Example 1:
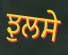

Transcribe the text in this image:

ਝੁਲਸੇ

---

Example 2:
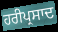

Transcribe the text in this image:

ਹਰੀਪ੍ਰਸਾਦ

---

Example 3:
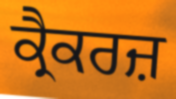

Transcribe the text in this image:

ਕ੍ਰੈਕਰਜ਼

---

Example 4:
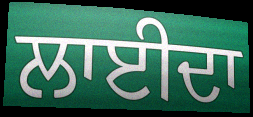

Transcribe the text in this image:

ਲਾਈਦਾ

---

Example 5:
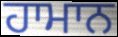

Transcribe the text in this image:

ਹਾਮਾਨ